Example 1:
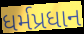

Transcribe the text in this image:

ધર્મપ્રધાન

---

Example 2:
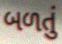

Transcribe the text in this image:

બળતું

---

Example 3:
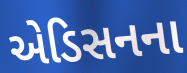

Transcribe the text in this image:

એડિસનના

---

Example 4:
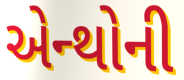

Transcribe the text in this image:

એન્થોની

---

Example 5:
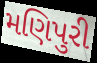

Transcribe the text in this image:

મણિપુરી